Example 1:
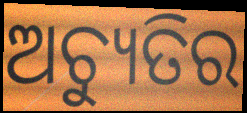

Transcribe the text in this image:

ଅଚ୍ୟୁତିର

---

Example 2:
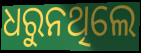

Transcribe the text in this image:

ଧରୁନଥିଲେ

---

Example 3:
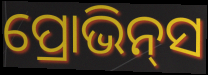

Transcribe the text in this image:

ପ୍ରୋଭିନ୍‌ସ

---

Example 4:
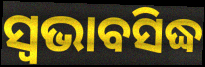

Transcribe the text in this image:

ସ୍ଵଭାବସିଦ୍ଧ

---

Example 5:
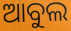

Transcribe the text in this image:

ଆବୁଲ